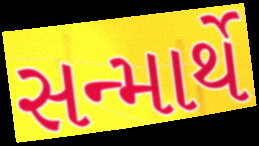
સન્માર્થે